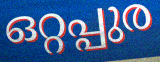
ഒറ്റപ്പുര